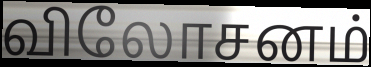
விலோசனம்